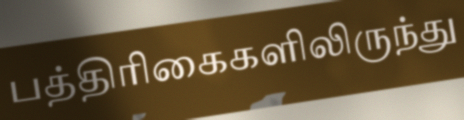
பத்திரிகைகளிலிருந்து